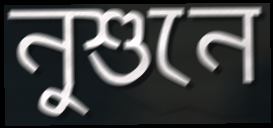
নুশুনে